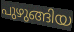
പുഴുങ്ങിയ